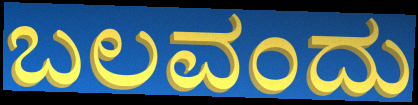
ಬಲವಂದು